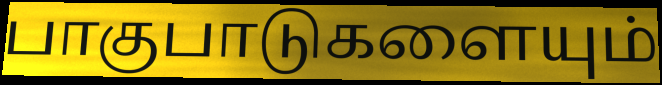
பாகுபாடுகளையும்